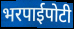
भरपाईपोटी